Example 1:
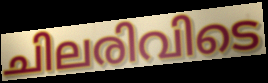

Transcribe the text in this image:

ചിലരിവിടെ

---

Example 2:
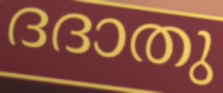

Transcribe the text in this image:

ദദാതു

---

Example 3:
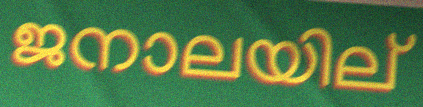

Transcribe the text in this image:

ജനാലയില്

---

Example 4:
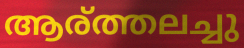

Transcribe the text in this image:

ആര്ത്തലച്ചു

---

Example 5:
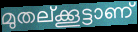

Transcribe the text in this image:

മുതല്ക്കൂട്ടാണ്